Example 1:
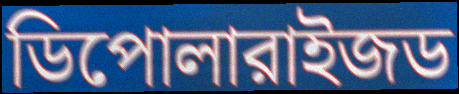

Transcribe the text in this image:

ডিপোলারাইজড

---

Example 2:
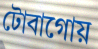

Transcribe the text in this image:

টোবাগোয়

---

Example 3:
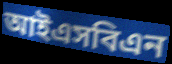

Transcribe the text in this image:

আইএসবিএন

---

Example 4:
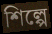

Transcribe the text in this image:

শিল্পে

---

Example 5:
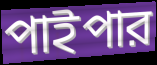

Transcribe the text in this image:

পাইপার